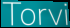
Torvi